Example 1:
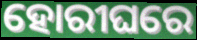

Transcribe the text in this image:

ହୋରୀଘରେ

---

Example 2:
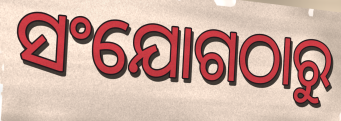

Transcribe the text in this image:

ସଂଯୋଗଠାରୁ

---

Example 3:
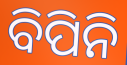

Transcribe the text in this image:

ବିପିନି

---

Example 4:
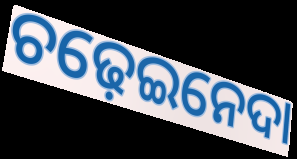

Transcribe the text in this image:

ଚଢ଼େଇନେଦା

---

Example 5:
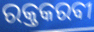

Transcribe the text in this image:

ରକ୍ତକରବୀ